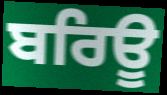
ਬਰਿਊ